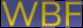
WBF